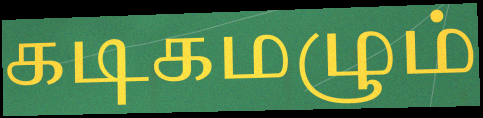
கடிகமழும்